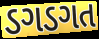
ડગડગત